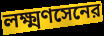
লক্ষ্মণসেনের